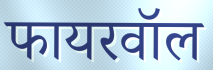
फायरवॉल